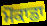
ਮੋਂਕਾਡਾ